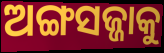
ଅଙ୍ଗସଜ୍ଜାକୁ